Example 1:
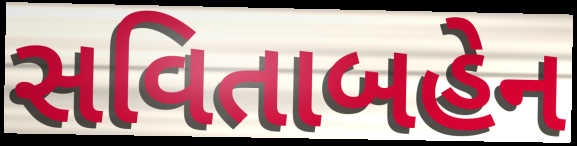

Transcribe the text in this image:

સવિતાબહેન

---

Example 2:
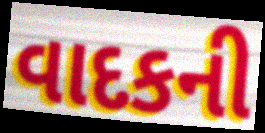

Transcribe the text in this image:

વાદકની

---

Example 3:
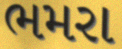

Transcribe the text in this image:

ભમરા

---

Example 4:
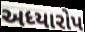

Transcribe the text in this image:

અધ્યારોપ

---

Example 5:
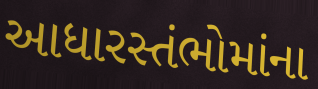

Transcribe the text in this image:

આધારસ્તંભોમાંના